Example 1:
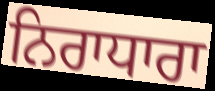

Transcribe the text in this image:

ਨਿਰਾਧਾਰਾ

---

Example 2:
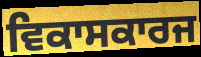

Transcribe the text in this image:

ਵਿਕਾਸਕਾਰਜ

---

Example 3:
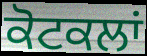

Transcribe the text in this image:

ਕੋਟਕਲਾਂ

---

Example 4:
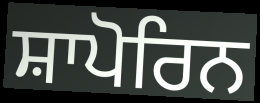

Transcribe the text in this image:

ਸ਼ਾਪੋਰਿਨ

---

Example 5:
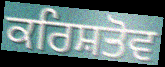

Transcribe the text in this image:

ਕਰਿਸ਼ਤੋਵ